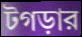
টগড়ার